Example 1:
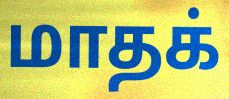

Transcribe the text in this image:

மாதக்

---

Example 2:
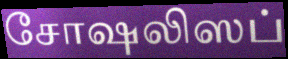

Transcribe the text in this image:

சோஷலிஸப்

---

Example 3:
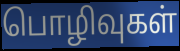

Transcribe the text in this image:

பொழிவுகள்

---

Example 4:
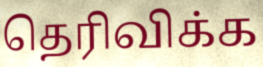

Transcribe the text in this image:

தெரிவிக்க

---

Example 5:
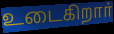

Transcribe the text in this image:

உடைகிறார்